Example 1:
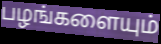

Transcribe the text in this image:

பழங்களையும்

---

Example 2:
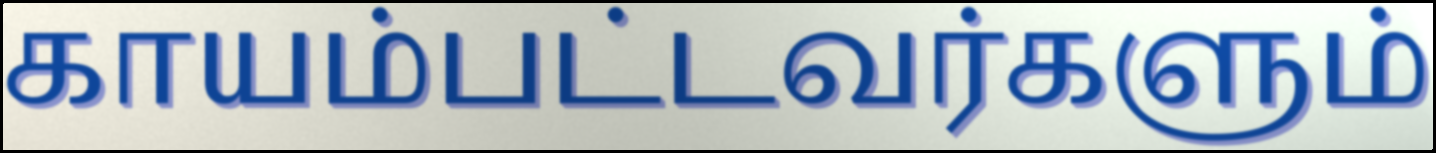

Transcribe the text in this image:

காயம்பட்டவர்களும்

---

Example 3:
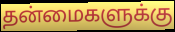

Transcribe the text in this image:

தன்மைகளுக்கு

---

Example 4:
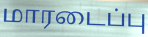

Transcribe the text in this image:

மாரடைப்பு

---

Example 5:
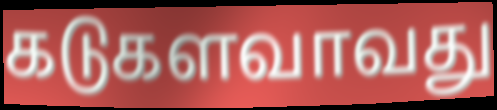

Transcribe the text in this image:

கடுகளவாவது